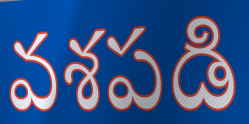
వశపడి